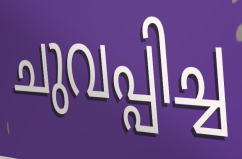
ചുവപ്പിച്ച